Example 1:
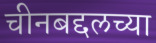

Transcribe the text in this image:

चीनबद्दलच्या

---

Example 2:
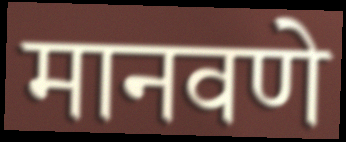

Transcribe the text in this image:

मानवणे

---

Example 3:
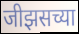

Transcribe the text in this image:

जीझसच्या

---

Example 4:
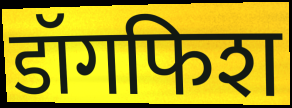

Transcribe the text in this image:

डॉगफिश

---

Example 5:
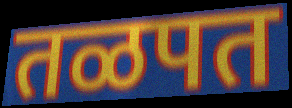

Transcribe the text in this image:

तळपत